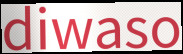
diwaso